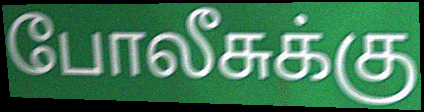
போலீசுக்கு